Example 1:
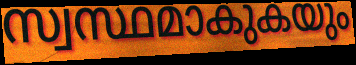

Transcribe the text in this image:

സ്വസ്ഥമാകുകയും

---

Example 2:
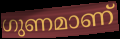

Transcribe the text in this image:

ഗുണമാണ്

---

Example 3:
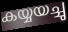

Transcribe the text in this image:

കയ്യയച്ചു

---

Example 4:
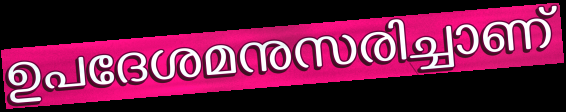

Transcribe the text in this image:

ഉപദേശമനുസരിച്ചാണ്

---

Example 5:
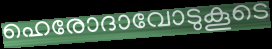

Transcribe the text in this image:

ഹെരോദാവോടുകൂടെ